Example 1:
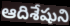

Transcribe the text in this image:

ఆదిశేషుని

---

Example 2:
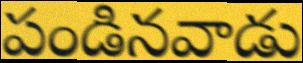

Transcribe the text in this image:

పండినవాడు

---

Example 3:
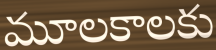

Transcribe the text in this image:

మూలకాలకు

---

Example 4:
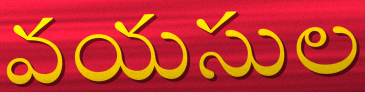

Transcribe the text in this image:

వయసుల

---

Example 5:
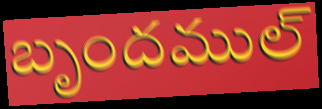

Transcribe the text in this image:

బృందముల్